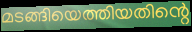
മടങ്ങിയെത്തിയതിന്റെ